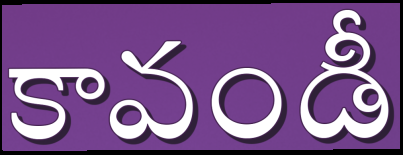
కావండీ